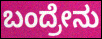
ಬಂದ್ರೇನು